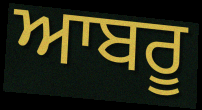
ਆਬਰੂ